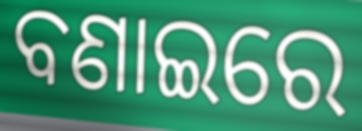
ବଣାଇରେ